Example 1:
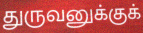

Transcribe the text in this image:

துருவனுக்குக்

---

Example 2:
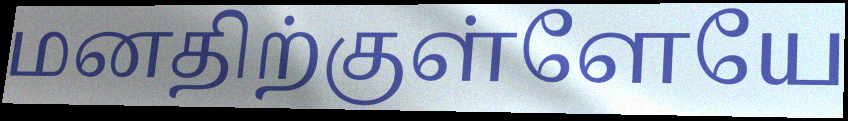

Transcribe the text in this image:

மனதிற்குள்ளேயே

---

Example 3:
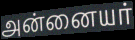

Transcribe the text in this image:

அன்னையர்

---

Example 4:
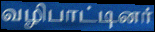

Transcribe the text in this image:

வழிபாட்டினர்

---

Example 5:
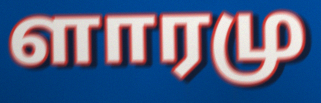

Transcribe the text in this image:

ளாரமு